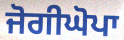
ਜੋਗੀਘੋਪਾ